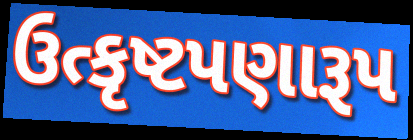
ઉત્કૃષ્ટપણારૂપ